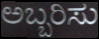
ಅಬ್ಬರಿಸು